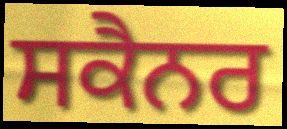
ਸਕੈਨਰ